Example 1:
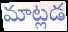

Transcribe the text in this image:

మాట్లడ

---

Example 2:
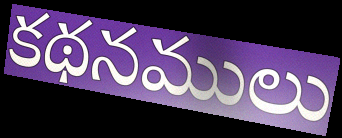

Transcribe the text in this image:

కథనములు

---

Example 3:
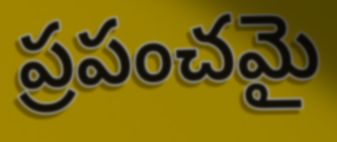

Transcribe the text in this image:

ప్రపంచమై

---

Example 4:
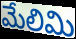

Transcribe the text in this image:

మేలిమి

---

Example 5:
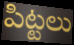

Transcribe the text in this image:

పిట్టలు